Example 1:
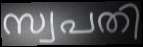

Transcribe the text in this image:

സ്വപതി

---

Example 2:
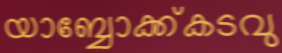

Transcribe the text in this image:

യാബ്ബോക്ക്കടവു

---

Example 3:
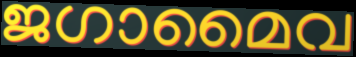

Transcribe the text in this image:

ജഗാമൈവ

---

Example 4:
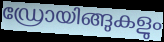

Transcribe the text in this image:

ഡ്രോയിങ്ങുകളും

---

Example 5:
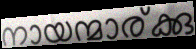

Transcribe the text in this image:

നായന്മാര്ക്കു